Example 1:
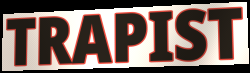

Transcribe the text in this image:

TRAPIST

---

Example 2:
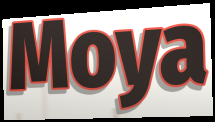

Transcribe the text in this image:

Moya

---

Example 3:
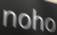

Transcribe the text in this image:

noho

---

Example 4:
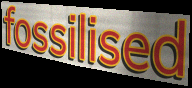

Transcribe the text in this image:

fossilised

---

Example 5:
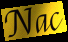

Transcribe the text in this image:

Nac